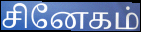
சினேகம்